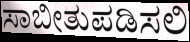
ಸಾಬೀತುಪಡಿಸಲಿ